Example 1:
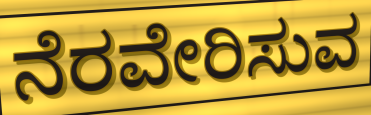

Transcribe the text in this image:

ನೆರವೇರಿಸುವ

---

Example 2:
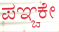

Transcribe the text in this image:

ಪಞ್ಚಕೇ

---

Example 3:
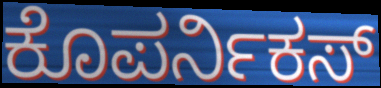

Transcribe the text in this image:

ಕೊಪರ್ನಿಕಸ್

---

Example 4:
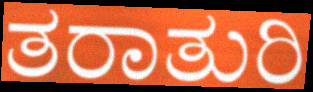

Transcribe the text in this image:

ತರಾತುರಿ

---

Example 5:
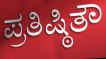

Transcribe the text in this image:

ಪ್ರತಿಷ್ಠಿತೌ